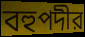
বহুপদীর